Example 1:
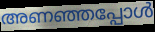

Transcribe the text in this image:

അണഞ്ഞപ്പോൾ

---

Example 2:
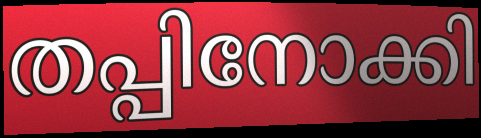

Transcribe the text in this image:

തപ്പിനോക്കി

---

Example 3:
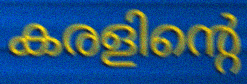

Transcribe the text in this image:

കരളിന്റെ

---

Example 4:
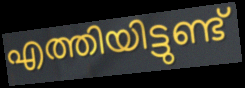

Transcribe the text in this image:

എത്തിയിട്ടുണ്ട്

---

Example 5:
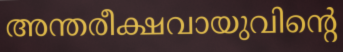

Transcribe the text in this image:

അന്തരീക്ഷവായുവിന്റെ